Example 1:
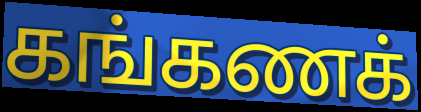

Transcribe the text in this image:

கங்கணக்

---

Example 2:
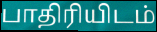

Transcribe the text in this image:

பாதிரியிடம்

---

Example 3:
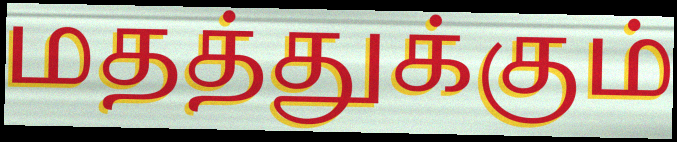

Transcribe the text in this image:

மதத்துக்கும்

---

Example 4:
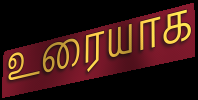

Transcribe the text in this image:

உரையாக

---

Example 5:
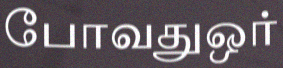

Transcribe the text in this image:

போவதுஒர்